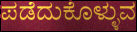
ಪಡೆದುಕೊಳ್ಳುವ